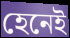
হেনেই